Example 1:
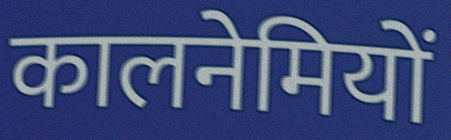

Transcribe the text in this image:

कालनेमियों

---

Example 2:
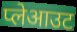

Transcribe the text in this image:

प्लेआउट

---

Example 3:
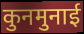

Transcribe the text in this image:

कुनमुनाई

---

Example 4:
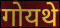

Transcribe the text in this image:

गोयथे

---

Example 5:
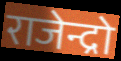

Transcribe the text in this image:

राजेन्द्रो